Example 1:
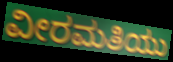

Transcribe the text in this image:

ವೀರಮತಿಯು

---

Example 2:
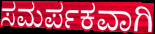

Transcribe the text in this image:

ಸಮರ್ಪಕವಾಗಿ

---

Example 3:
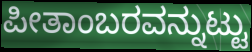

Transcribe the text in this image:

ಪೀತಾಂಬರವನ್ನುಟ್ಟು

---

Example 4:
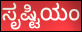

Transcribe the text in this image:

ಸೃಷ್ಟಿಯಂ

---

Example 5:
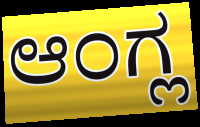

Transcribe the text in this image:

ಆಂಗ್ಲ